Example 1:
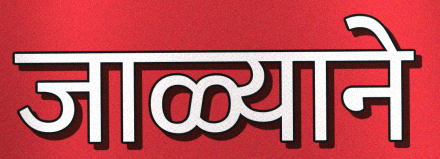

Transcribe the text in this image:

जाळ्याने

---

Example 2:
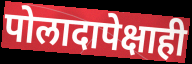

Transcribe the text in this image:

पोलादापेक्षाही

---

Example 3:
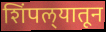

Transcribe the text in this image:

शिंपल्यातून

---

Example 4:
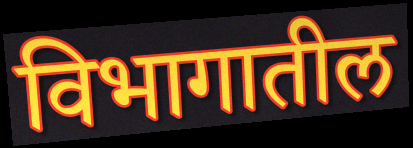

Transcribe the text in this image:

विभागातील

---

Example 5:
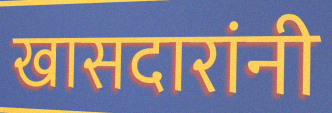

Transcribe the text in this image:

खासदारांनी